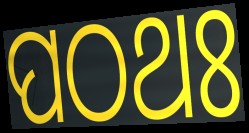
ପଠଥଃ